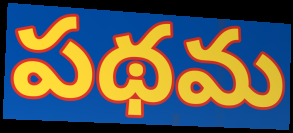
పథమ